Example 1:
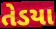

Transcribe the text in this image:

તેડયા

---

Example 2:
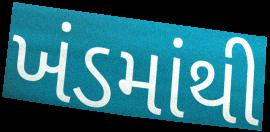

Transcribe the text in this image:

ખંડમાંથી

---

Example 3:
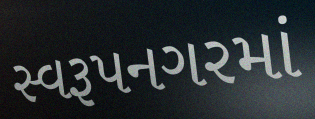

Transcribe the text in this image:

સ્વરૂપનગરમાં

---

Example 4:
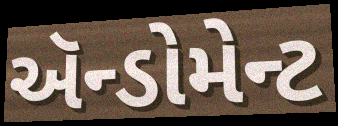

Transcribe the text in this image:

ઍન્ડોમેન્ટ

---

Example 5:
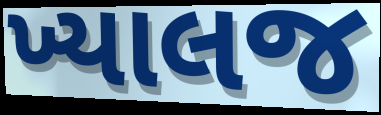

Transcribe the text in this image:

ખ્યાલજ